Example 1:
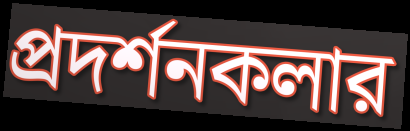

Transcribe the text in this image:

প্রদর্শনকলার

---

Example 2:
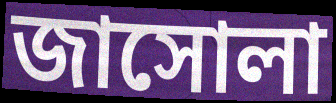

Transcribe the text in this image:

জাসোলা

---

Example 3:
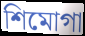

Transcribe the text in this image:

শিমোগা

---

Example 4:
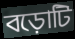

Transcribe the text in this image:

বড়োটি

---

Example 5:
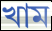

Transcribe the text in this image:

খাম